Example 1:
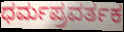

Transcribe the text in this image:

ಧರ್ಮಪ್ರವರ್ತಕ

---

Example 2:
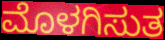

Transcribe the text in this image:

ಮೊಳಗಿಸುತ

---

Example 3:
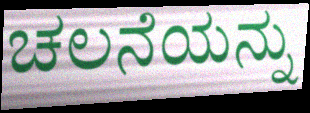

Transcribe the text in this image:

ಚಲನೆಯನ್ನು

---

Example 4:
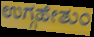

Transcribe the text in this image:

ಉಗ್ಗಹೇತುಂ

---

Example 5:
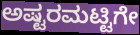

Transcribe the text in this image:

ಅಷ್ಟರಮಟ್ಟಿಗೇ